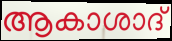
ആകാശാദ്